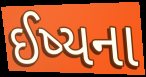
ઈષ્યના